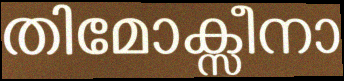
തിമോക്സീനാ